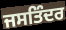
ਜਸਤਿੰਦਰ